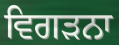
ਵਿਗੜਨਾ